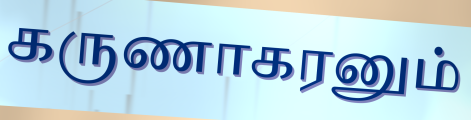
கருணாகரனும்